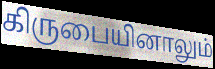
கிருபையினாலும்